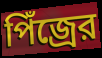
পিঁজ্রের